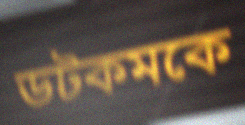
ডটকমকে